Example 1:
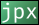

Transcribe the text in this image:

jpx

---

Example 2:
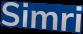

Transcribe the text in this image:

Simri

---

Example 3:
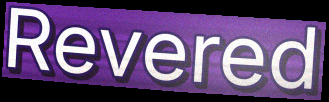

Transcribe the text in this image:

Revered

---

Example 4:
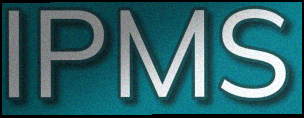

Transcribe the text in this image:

IPMS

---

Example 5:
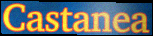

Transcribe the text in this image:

Castanea